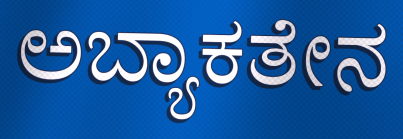
ಅಬ್ಯಾಕತೇನ